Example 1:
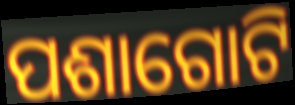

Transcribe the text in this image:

ପଶାଗୋଟି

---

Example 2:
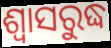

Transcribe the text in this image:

ଶ୍ବାସରୁଦ୍ଧ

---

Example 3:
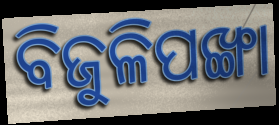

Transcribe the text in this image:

ବିଜୁଳିପଙ୍ଖା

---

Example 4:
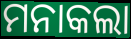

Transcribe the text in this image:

ମନାକଲା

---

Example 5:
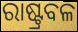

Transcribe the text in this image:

ରାଷ୍ଟ୍ରବଳ